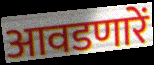
आवडणारें